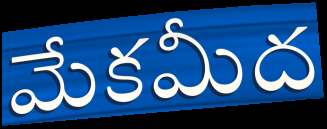
మేకమీద